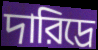
দারিদ্রে